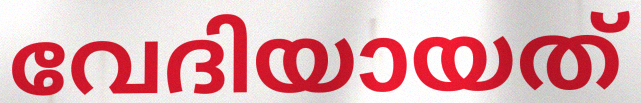
വേദിയായത്